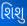
શિશુ